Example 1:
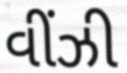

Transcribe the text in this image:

વીંઝી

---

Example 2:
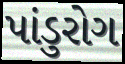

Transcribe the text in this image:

પાંડુરોગ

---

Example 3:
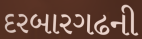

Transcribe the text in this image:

દરબારગઢની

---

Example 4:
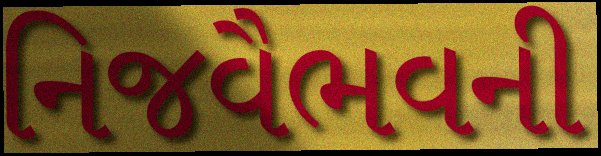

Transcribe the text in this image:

નિજવૈભવની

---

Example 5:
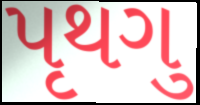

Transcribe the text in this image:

પૃથગુ